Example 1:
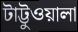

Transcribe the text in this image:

টাট্টুওয়ালা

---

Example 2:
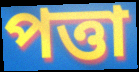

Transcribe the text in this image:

পত্তা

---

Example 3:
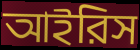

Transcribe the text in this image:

আইরিস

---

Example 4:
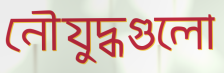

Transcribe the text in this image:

নৌযুদ্ধগুলো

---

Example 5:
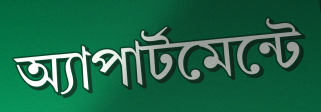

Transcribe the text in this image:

অ্যাপার্টমেন্টে